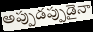
అప్పుడప్పుడైనా